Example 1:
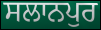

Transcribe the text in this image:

ਸਲਾਨਪੁਰ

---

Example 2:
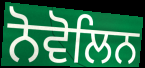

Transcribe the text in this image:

ਨੋਵੋਲਿਨ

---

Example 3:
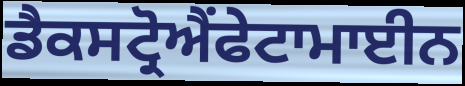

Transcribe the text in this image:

ਡੈਕਸਟ੍ਰੋਐਂਫੇਟਾਮਾਈਨ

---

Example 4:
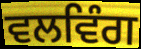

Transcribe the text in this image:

ਵਲਵਿੰਗ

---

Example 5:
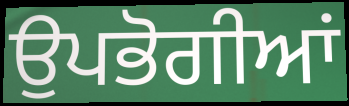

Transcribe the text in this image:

ਉਪਭੋਗੀਆਂ